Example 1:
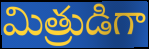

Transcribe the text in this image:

మిత్రుడిగా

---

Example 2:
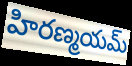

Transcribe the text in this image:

హిరణ్మయమ్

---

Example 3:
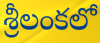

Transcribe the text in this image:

శ్రీలంకలో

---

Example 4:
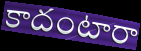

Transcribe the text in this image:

కాదంటారా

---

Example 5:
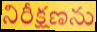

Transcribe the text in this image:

నిరీక్షణను